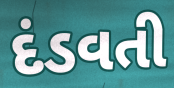
દંડવતી